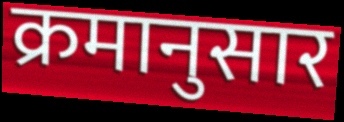
क्रमानुसार